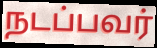
நடப்பவர்